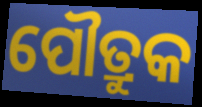
ପୌତ୍ରୁକ